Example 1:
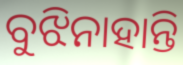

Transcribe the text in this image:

ବୁଝିନାହାନ୍ତି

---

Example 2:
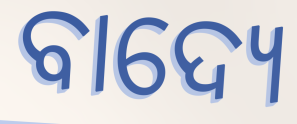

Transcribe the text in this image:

ବାଦ୍ୟେ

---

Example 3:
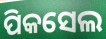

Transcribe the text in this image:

ପିକସେଲ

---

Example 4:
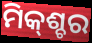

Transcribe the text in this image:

ମିକ୍‌ଶ୍ଚର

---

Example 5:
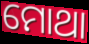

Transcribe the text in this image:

ମୋଥା